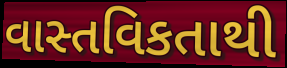
વાસ્તવિકતાથી